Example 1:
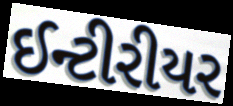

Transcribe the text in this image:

ઈન્ટીરીયર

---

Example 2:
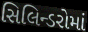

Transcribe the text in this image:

સિલિન્ડરોમાં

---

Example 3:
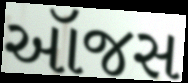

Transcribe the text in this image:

ઑજસ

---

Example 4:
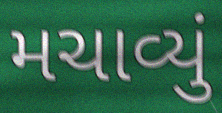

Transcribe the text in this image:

મચાવ્યું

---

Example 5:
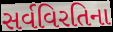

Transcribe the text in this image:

સર્વવિરતિના